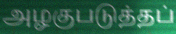
அழகுபடுத்தப்